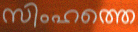
സിംഹത്തെ